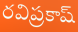
రవిప్రకాష్